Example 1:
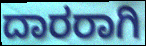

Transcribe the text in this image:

ದಾರರಾಗಿ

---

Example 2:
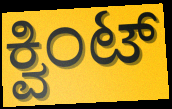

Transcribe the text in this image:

ಕ್ವಿಂಟ್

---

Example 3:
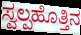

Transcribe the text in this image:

ಸ್ವಲ್ಪಹೊತ್ತಿನ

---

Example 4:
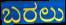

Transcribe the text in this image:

ಬರಲು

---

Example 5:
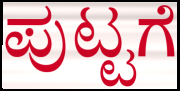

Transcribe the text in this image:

ಪುಟ್ಟಗೆ